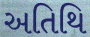
અતિથિ